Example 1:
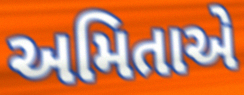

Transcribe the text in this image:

અમિતાએ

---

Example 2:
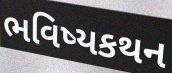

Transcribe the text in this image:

ભવિષ્યકથન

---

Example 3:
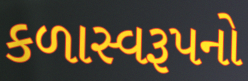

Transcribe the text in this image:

કળાસ્વરૂપનો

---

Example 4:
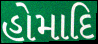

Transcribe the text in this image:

હોમાદિ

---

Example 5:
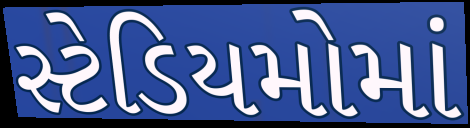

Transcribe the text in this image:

સ્ટેડિયમોમાં